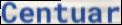
Centuar